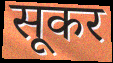
सूकर